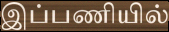
இப்பணியில்